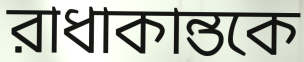
রাধাকান্তকে